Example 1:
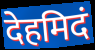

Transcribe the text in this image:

देहमिदं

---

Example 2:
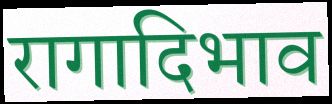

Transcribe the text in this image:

रागादिभाव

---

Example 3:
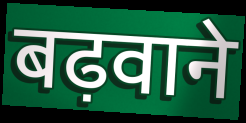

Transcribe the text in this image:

बढ़वाने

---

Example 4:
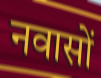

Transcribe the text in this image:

नवासों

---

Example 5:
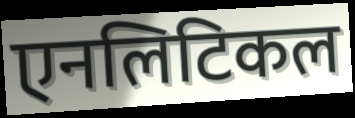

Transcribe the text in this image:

एनलिटिकल